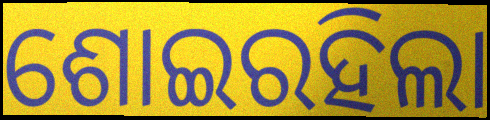
ଶୋଇରହିଲା